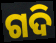
ଗଦି